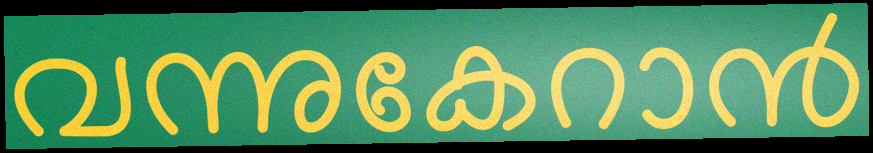
വന്നുകേറാൻ